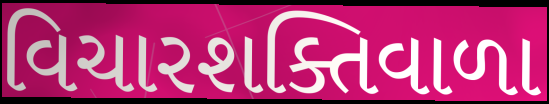
વિચારશક્તિવાળા